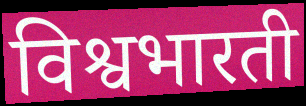
विश्वभारती